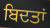
ਬਿਦਤਾਂ